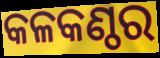
କଳକଣ୍ଠର